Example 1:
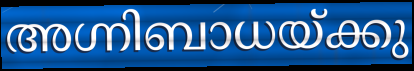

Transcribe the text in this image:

അഗ്നിബാധയ്ക്കു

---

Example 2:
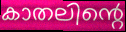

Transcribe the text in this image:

കാതലിന്റെ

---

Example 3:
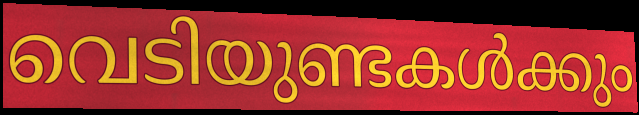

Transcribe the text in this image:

വെടിയുണ്ടകൾക്കും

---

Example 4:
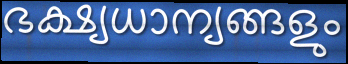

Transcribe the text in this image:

ഭക്ഷ്യധാന്യങ്ങളും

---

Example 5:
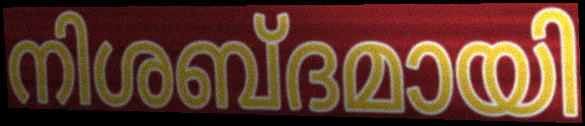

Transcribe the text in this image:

നിശബ്ദമായി